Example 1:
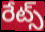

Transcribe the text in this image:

రేట్స్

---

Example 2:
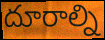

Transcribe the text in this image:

దూరాల్ని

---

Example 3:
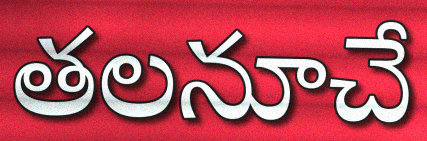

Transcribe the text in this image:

తలనూచే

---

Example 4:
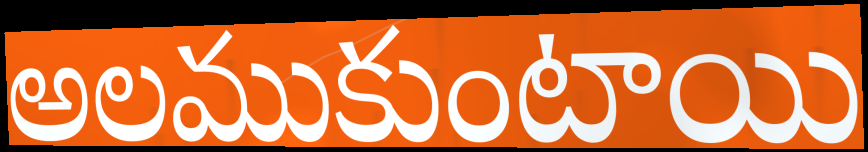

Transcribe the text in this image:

అలముకుంటాయి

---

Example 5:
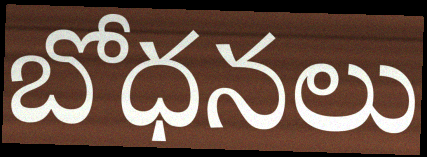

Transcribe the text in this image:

బోధనలు